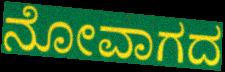
ನೋವಾಗದ